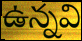
ఉన్నవి